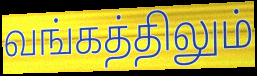
வங்கத்திலும்